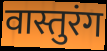
वास्तुरंग